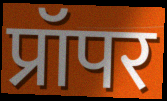
प्रॉपर